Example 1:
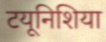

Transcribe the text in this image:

टयूनिशिया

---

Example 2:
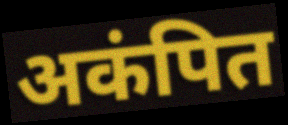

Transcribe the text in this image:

अकंपित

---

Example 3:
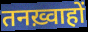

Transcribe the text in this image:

तनख़्वाहों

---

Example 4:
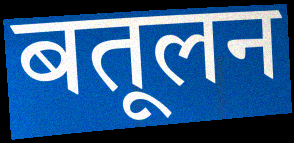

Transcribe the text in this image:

बतूलन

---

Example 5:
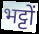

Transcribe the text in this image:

भट्टों